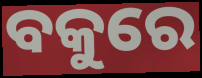
ବକୁରେ